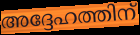
അദ്ദേഹത്തിന്